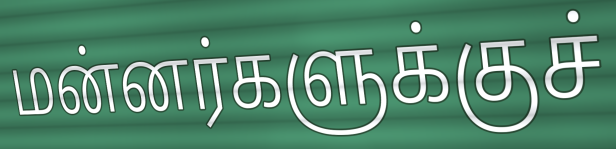
மன்னர்களுக்குச்